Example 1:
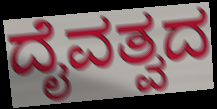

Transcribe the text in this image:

ದೈವತ್ವದ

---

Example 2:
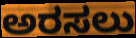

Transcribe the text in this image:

ಅರಸಲು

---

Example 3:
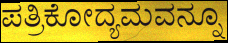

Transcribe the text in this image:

ಪತ್ರಿಕೋದ್ಯಮವನ್ನೂ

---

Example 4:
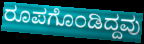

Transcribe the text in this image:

ರೂಪಗೊಂಡಿದ್ದವು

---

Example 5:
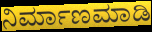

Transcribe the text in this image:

ನಿರ್ಮಾಣಮಾಡಿ